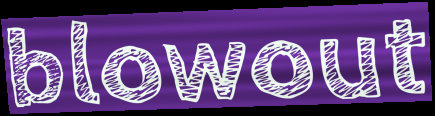
blowout